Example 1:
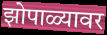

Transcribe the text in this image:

झोपाळ्यावर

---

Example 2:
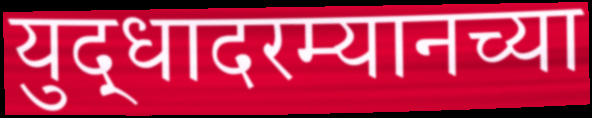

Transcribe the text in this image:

युद्धादरम्यानच्या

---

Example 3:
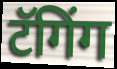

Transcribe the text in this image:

टॅगिंग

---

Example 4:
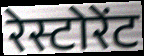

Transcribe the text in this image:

रेस्टोरेंट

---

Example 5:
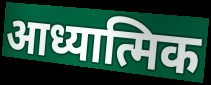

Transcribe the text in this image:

आध्यात्मिक